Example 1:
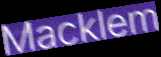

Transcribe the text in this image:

Macklem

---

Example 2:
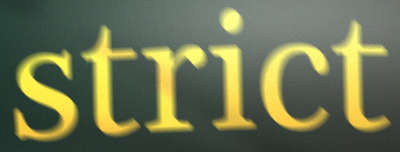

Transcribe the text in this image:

strict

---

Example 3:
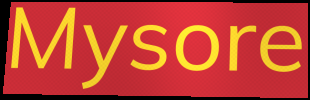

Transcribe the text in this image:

Mysore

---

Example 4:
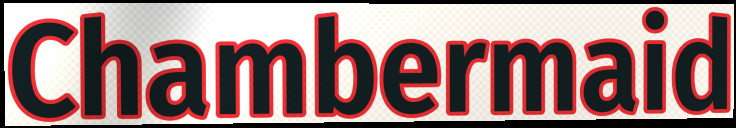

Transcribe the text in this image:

Chambermaid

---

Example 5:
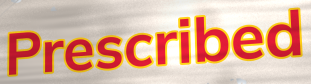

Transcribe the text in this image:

Prescribed